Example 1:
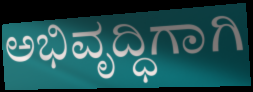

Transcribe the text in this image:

ಅಭಿವೃದ್ಧಿಗಾಗಿ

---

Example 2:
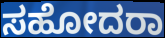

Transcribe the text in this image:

ಸಹೋದರಾ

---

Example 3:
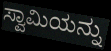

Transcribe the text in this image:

ಸ್ವಾಮಿಯನ್ನು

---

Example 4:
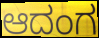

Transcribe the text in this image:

ಆದಂಗ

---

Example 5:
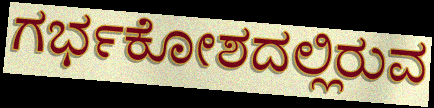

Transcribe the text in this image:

ಗರ್ಭಕೋಶದಲ್ಲಿರುವ